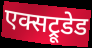
एक्सट्रूडेड